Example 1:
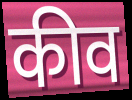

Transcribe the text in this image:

कीव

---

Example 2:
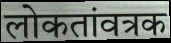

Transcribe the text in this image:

लोकतांवत्रक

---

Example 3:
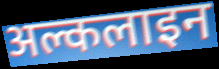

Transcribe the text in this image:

अल्कलाइन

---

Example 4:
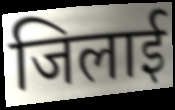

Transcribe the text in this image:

जिलाई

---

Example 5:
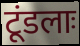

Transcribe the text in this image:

टूंडलाः